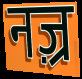
नज़्र